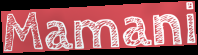
Mamani